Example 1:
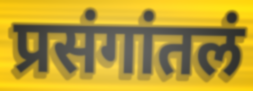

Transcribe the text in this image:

प्रसंगांतलं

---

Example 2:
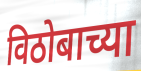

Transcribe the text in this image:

विठोबाच्या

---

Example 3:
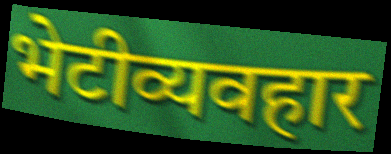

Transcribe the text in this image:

भेटीव्यवहार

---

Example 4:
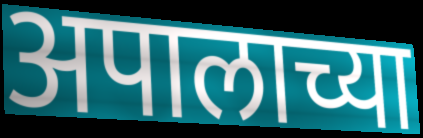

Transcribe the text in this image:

अपालाच्या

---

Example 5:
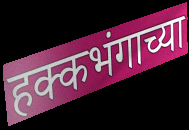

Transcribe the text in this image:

हक्कभंगाच्या